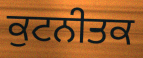
ਕੁਟਨੀਤਕ